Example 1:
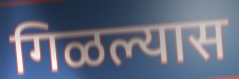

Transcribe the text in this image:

गिळल्यास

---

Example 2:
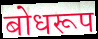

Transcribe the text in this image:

बोधरूप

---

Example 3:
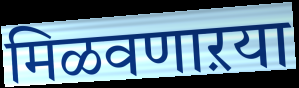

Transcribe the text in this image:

मिळवणाऱया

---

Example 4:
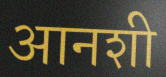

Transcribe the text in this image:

आनशी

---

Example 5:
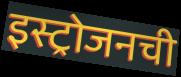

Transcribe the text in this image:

इस्ट्रोजनची